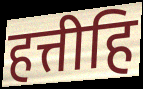
हत्तीहि